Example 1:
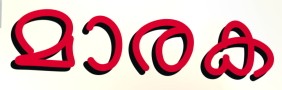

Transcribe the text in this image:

മാരക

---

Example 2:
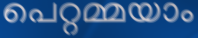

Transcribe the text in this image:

പെറ്റമ്മയാം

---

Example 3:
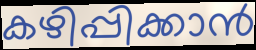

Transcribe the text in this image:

കഴിപ്പിക്കാൻ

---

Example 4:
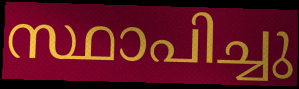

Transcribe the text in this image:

സ്ഥാപിച്ചു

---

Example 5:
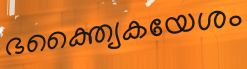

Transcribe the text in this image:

ഭക്ത്യൈകയേശം